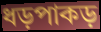
ধড়পাকড়